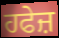
ਹਫੇਜ਼